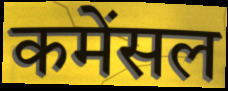
कमेंसल